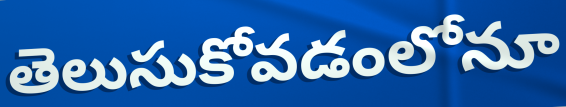
తెలుసుకోవడంలోనూ